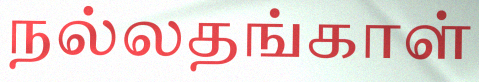
நல்லதங்காள்